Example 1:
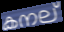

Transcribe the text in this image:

കനല്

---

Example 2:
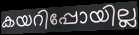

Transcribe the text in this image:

കയറിപ്പോയില്ല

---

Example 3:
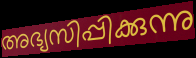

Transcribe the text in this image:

അഭ്യസിപ്പിക്കുന്നു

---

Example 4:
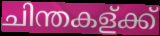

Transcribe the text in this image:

ചിന്തകള്ക്ക്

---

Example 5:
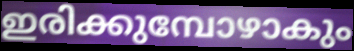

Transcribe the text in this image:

ഇരിക്കുമ്പോഴാകും